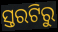
ସ୍ତରଟିରୁ